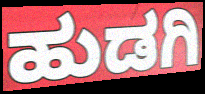
ಹುಡಗಿ